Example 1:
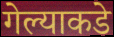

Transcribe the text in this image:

गेल्याकडे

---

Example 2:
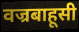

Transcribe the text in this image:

वज्रबाहूसी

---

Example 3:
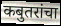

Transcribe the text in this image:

कबुतरांचा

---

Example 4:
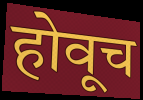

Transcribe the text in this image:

होवूच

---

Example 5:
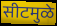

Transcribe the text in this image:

सीटमुळे